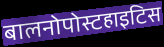
बालनोपोस्टहाइटिस